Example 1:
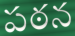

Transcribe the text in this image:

పఠన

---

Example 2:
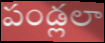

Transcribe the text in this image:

పండ్లలా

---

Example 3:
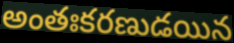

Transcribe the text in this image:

అంతఃకరణుడయిన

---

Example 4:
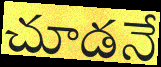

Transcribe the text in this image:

చూడనే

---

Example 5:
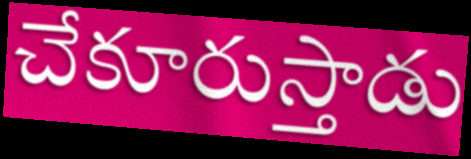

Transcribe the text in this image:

చేకూరుస్తాడు